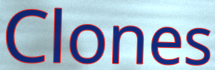
Clones